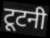
टूटनी